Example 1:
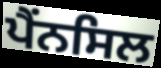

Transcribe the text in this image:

ਪੈਂਨਸਿਲ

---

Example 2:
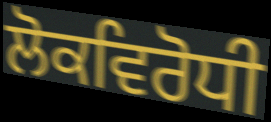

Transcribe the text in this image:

ਲੋਕਵਿਰੋਧੀ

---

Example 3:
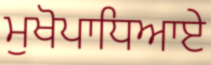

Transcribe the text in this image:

ਮੁਖੋਪਾਧਿਆਏ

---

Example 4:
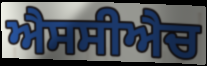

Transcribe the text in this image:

ਐਸਸੀਐਚ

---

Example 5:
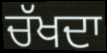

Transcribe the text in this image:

ਚੱਖਦਾ